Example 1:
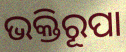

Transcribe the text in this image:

ଭକ୍ତିରୂପା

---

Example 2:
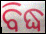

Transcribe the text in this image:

ବିଦ୍ଧ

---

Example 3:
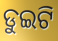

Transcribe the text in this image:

ଡୁଇଟି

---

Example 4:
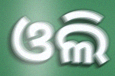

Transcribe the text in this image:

ଓଲି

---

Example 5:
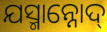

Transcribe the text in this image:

ଯସ୍ମାନ୍ନୋଦ୍